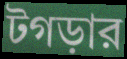
টগড়ার